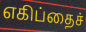
எகிப்தைச்